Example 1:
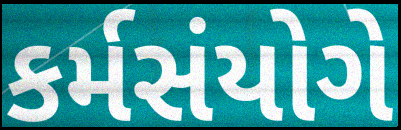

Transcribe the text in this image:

કર્મસંયોગે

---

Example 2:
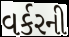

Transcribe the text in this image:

વર્કરની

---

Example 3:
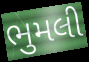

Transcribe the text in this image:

ભુમલી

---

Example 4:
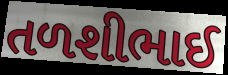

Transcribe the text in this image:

તળશીભાઈ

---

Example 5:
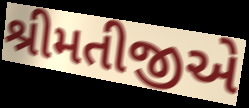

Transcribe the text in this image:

શ્રીમતીજીએ